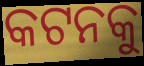
କଟନକୁ